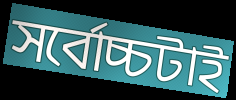
সর্বোচ্চটাই